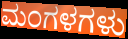
ಮಂಗಳಗಳು